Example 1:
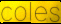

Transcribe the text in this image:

coles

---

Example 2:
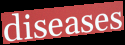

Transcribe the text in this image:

diseases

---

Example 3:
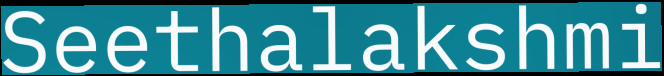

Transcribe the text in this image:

Seethalakshmi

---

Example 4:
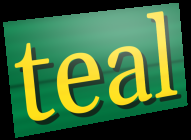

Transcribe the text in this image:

teal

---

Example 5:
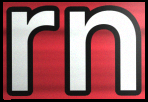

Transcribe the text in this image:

rn